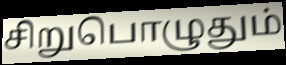
சிறுபொழுதும்